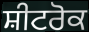
ਸ਼ੀਟਰੋਕ